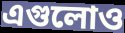
এগুলোও